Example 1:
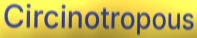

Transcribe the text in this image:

Circinotropous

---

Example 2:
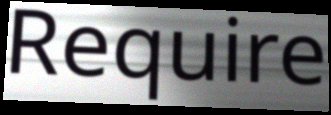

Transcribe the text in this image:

Require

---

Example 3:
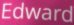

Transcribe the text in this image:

Edward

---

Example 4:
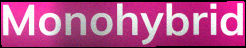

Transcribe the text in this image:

Monohybrid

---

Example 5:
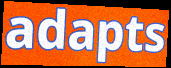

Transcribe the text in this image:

adapts